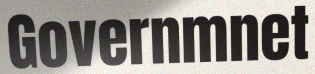
Governmnet